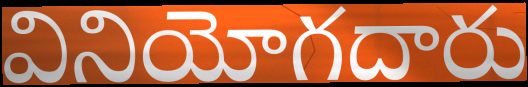
వినియోగదారు